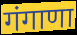
गंगाणा